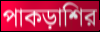
পাকড়াশির